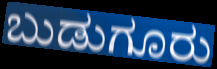
ಬುಡುಗೂರು